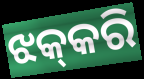
ଝକ୍‌କରି